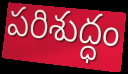
పరిశుద్ధం